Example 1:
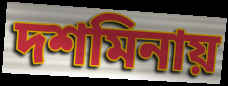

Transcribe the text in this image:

দশমিনায়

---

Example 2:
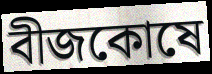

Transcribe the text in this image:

বীজকোষে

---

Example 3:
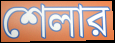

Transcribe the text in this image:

শেলার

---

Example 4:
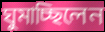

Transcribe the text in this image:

ঘুমাচ্ছিলেন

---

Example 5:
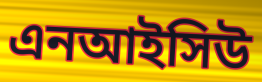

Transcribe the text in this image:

এনআইসিউ